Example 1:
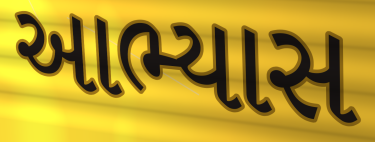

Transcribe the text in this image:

આભ્યાસ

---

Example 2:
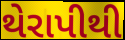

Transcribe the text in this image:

થેરાપીથી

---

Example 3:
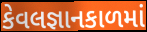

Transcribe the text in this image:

કેવલજ્ઞાનકાળમાં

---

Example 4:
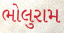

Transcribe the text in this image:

ભોલુરામ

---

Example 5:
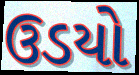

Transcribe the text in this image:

ઉડયો